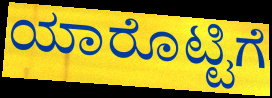
ಯಾರೊಟ್ಟಿಗೆ